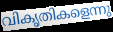
വികൃതികളെന്നു